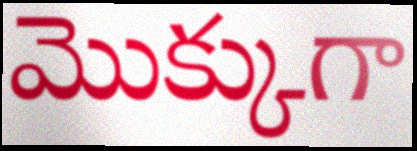
మొక్కుగా